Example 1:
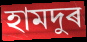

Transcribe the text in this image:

হামদুৰ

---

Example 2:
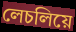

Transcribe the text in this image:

লেচলিয়ে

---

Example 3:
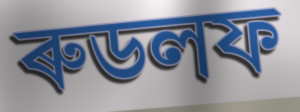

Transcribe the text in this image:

ৰুডলফ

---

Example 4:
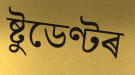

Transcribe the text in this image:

ষ্টুডেণ্টৰ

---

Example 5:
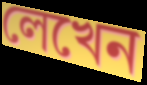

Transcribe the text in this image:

লেখেন